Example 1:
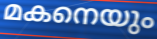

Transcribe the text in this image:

മകനെയും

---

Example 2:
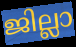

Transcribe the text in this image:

ജില്ലാ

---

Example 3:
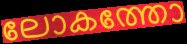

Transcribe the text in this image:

ലോകത്തോ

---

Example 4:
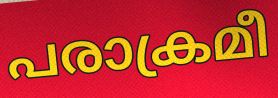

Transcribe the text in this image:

പരാക്രമീ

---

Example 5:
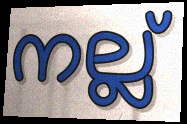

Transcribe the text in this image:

നല്ല്